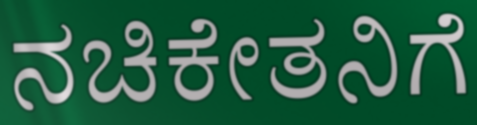
ನಚಿಕೇತನಿಗೆ